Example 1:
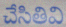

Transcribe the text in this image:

చేసితివి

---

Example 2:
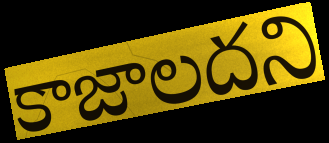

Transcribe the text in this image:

కాజాలదని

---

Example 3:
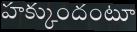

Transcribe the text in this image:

హక్కుందంటూ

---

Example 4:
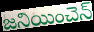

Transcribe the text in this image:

జనియించెన్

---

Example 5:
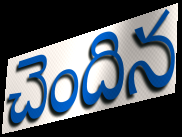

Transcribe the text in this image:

చెందిన